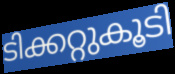
ടിക്കറ്റുകൂടി